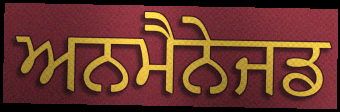
ਅਨਮੈਨੇਜਡ